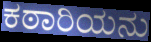
ಕಠಾರಿಯನು